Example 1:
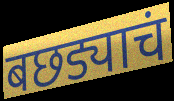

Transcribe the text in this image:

बछड्याचं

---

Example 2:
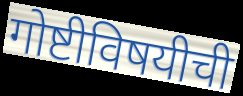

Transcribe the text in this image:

गोष्टीविषयीची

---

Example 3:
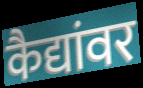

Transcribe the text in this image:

कैद्यांवर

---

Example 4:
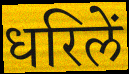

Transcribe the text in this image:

धरिलें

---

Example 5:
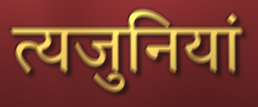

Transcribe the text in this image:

त्यजुनियां